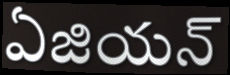
ఏజియన్